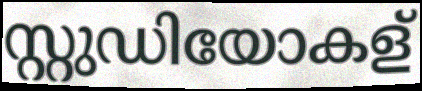
സ്റ്റുഡിയോകള്